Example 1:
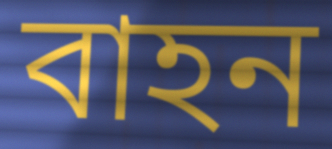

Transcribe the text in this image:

বাহন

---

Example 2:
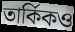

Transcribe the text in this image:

তার্কিকও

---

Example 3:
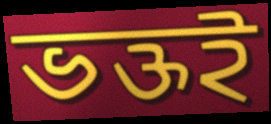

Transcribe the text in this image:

ভক্তই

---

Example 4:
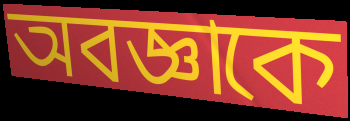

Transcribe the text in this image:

অবজ্ঞাকে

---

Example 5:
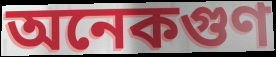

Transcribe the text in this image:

অনেকগুণ